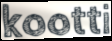
kootti